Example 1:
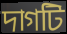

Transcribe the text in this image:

দাগটি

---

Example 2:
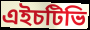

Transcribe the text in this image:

এইচটিভি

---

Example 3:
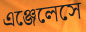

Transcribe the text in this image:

এঞ্জেলেসে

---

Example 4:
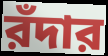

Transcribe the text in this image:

রঁদার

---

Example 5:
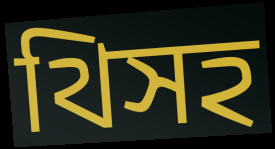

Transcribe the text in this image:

থিসহ